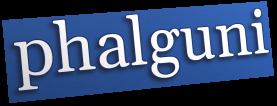
phalguni